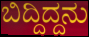
ಬಿದ್ದಿದ್ದನು